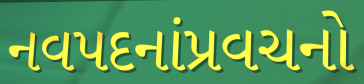
નવપદનાંપ્રવચનો